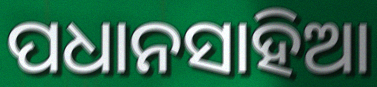
ପଧାନସାହିଆ